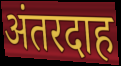
अंतरदाह